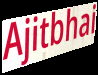
Ajitbhai